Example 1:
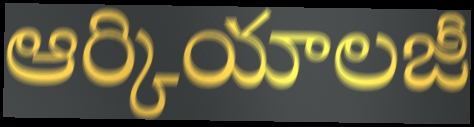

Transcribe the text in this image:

ఆర్కియాలజీ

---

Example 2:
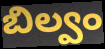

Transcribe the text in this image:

బిల్వం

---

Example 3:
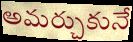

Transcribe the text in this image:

అమర్చుకునే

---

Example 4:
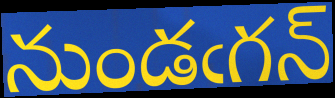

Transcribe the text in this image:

నుండఁగన్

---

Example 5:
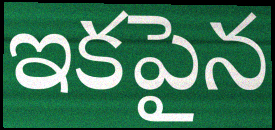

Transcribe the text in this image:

ఇకపైన